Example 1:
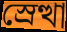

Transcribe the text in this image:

স্রেত্থা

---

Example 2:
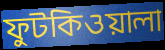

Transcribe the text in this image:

ফুটকিওয়ালা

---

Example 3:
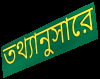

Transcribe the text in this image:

তথ্যানুসারে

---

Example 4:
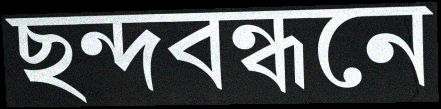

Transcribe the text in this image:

ছন্দবন্ধনে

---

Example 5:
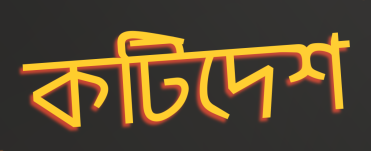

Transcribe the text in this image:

কটিদেশ